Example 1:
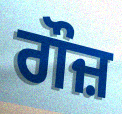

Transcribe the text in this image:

ਗੌਜ਼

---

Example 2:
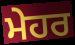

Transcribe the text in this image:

ਮੇਹਰ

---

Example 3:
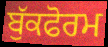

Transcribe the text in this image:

ਬੁੱਕਫੋਰਮ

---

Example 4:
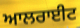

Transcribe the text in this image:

ਆਲਰਾਈਟ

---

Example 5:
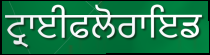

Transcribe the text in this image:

ਟ੍ਰਾਈਫਲੋਰਾਇਡ